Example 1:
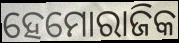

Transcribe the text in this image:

ହେମୋରାଜିକ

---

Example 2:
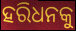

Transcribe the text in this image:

ହରିଧନକୁ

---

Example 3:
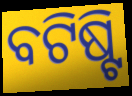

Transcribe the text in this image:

ବଟିଷ୍ଟି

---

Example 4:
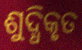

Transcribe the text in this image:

ଶୁଦ୍ଧିକୃତ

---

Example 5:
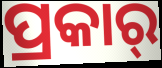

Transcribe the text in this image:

ପ୍ରକାର୍